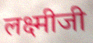
लक्ष्मीजी